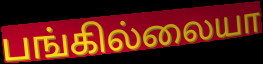
பங்கில்லையா